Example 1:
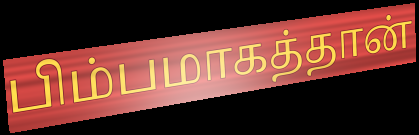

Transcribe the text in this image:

பிம்பமாகத்தான்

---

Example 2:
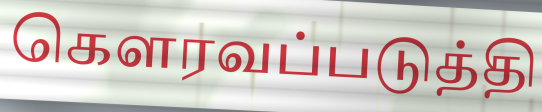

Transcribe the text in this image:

கெளரவப்படுத்தி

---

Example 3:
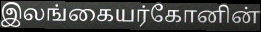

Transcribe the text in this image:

இலங்கையர்கோனின்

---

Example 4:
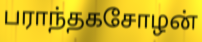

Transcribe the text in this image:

பராந்தகசோழன்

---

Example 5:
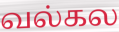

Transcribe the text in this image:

வல்கல